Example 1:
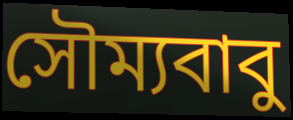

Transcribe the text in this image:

সৌম্যবাবু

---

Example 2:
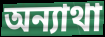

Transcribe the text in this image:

অন্যাথা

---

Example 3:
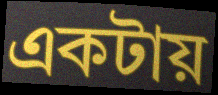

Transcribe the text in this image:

একটায়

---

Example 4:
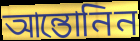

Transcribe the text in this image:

আন্তোনিন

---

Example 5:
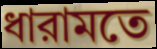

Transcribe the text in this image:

ধারামতে